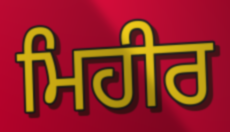
ਮਿਹੀਰ